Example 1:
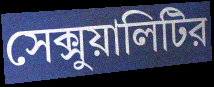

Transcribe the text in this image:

সেক্সুয়ালিটির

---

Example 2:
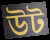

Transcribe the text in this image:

উট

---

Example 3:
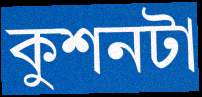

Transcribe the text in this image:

কুশনটা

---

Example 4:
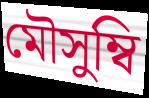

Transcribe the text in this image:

মৌসুম্বি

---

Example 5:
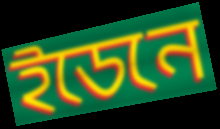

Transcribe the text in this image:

ইডেনে